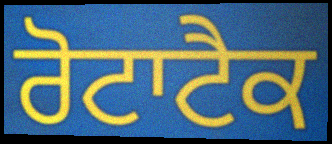
ਰੋਟਾਟੈਕ